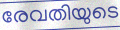
രേവതിയുടെ